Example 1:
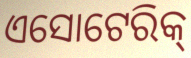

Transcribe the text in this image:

ଏସୋଟେରିକ୍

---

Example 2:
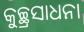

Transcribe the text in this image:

କୁଚ୍ଛ୍ରସାଧନା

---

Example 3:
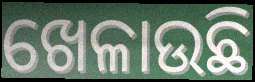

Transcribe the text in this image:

ଖେଳାଉଛି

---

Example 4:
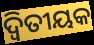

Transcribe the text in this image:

ଦ୍ୱିତୀୟକ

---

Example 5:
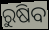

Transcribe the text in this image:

ରୁଷିବ